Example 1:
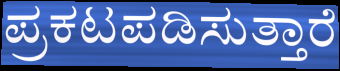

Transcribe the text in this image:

ಪ್ರಕಟಪಡಿಸುತ್ತಾರೆ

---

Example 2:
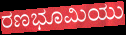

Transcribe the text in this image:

ರಣಭೂಮಿಯು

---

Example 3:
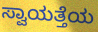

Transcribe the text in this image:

ಸ್ವಾಯತ್ತೆಯ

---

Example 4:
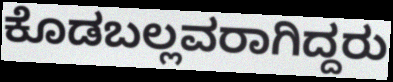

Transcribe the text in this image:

ಕೊಡಬಲ್ಲವರಾಗಿದ್ದರು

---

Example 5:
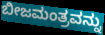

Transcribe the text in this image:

ಬೀಜಮಂತ್ರವನ್ನು